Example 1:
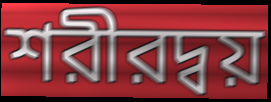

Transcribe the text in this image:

শরীরদ্বয়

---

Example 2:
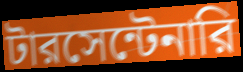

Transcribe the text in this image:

টারসেন্টেনারি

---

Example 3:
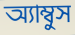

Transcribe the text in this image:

অ্যাম্বুস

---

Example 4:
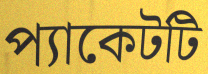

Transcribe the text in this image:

প্যাকেটটি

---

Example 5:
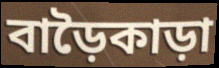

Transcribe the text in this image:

বাড়ৈকাড়া